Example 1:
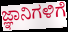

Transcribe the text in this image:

ಜ್ಞಾನಿಗಳಿಗೆ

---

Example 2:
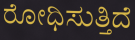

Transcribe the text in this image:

ರೋಧಿಸುತ್ತಿದೆ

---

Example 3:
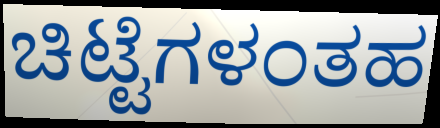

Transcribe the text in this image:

ಚಿಟ್ಟೆಗಳಂತಹ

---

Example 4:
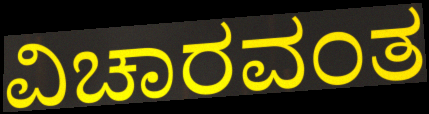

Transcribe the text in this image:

ವಿಚಾರವಂತ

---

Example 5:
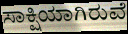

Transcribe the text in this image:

ಸಾಕ್ಷಿಯಾಗಿರುವೆ